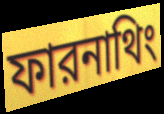
ফারনাথিং